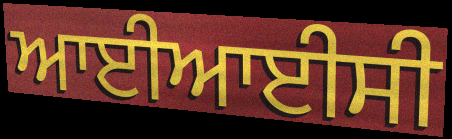
ਆਈਆਈਸੀ